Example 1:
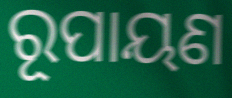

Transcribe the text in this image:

ରୂପାୟଣ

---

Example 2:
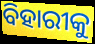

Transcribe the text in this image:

ବିହାରୀକୁ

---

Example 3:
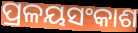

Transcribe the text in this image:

ପ୍ରଳୟସଂକାଶ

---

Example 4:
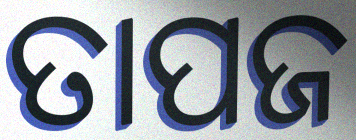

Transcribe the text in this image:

ତାପଜ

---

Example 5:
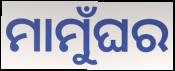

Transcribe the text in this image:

ମାମୁଁଘର